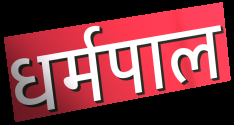
धर्मपाल